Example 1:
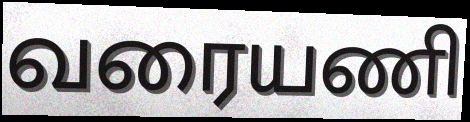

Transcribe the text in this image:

வரையணி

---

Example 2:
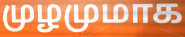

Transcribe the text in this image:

முழமுமாக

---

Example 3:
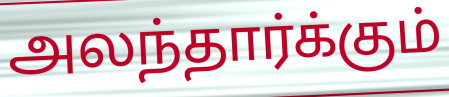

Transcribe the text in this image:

அலந்தார்க்கும்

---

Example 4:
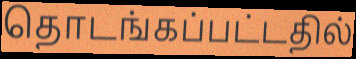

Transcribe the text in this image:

தொடங்கப்பட்டதில்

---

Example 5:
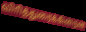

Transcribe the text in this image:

விரித்துரைக்கின்றன